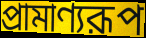
প্রামাণ্যরূপ